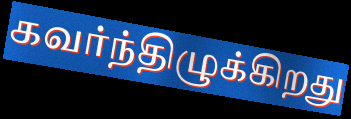
கவர்ந்திழுக்கிறது